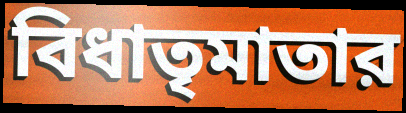
বিধাতৃমাতার